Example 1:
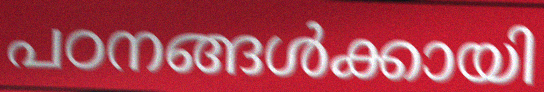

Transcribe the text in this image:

പഠനങ്ങൾക്കായി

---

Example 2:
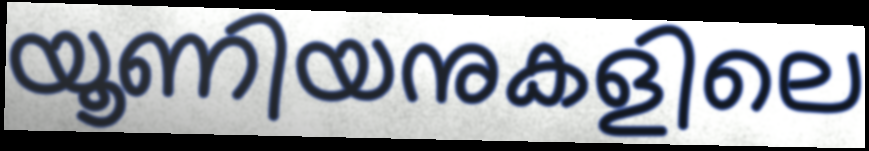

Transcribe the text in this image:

യൂണിയനുകളിലെ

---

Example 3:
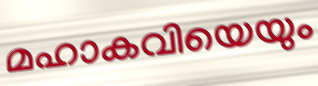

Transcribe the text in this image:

മഹാകവിയെയും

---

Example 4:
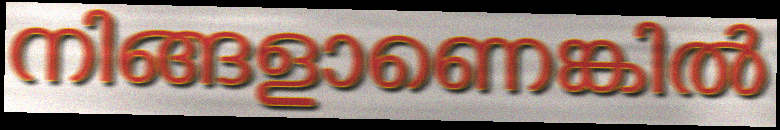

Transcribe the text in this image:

നിങ്ങളാണെങ്കിൽ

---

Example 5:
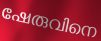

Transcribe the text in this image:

ഷേരുവിനെ